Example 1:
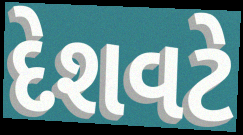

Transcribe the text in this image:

દેશવટે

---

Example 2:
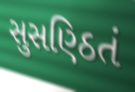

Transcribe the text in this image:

સુસણ્ઠિતં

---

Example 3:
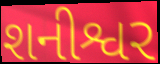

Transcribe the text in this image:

શનીશ્વર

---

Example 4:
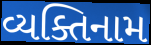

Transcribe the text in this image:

વ્યક્તિનામ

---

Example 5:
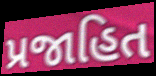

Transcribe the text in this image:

પ્રજાહિત